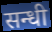
सन्धी